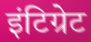
इंटिग्रेट